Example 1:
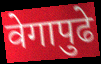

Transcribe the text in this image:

वेगापुढे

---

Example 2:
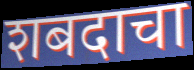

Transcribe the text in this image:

शबदाचा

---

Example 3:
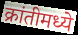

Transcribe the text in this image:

क्रांतीमध्ये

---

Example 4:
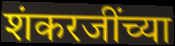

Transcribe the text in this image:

शंकरजींच्या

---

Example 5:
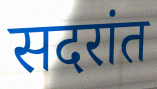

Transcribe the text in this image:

सदरांत